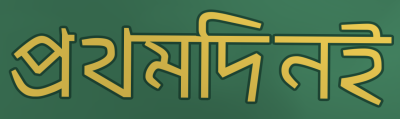
প্রথমদিনই